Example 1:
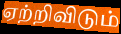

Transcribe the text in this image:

ஏற்றிவிடும்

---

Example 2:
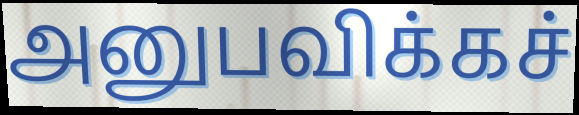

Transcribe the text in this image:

அனுபவிக்கச்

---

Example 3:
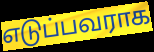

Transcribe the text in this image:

எடுப்பவராக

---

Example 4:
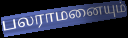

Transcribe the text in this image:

பலராமனையும்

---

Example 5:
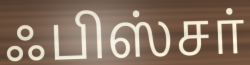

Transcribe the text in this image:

ஃபிஸ்சர்